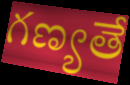
గణ్యతే